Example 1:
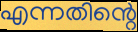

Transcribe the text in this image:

എന്നതിന്റെ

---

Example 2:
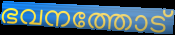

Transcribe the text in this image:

ഭവനത്തോട്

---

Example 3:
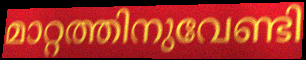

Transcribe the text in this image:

മാറ്റത്തിനുവേണ്ടി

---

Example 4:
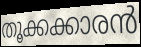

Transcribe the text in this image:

തൂക്കക്കാരൻ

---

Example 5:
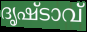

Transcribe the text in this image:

ദൃഷ്ടാവ്